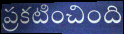
ప్రకటించింది